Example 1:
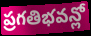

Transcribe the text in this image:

ప్రగతిభవన్లో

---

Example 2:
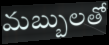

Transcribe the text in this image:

మబ్బులతో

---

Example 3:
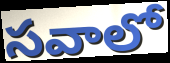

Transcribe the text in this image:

సవాలో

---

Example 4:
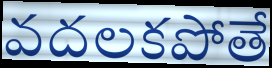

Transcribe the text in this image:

వదలకపోతే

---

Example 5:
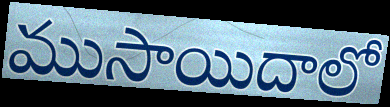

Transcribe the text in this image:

ముసాయిదాలో